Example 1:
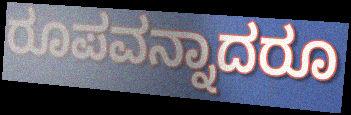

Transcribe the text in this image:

ರೂಪವನ್ನಾದರೂ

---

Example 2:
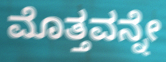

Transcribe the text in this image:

ಮೊತ್ತವನ್ನೇ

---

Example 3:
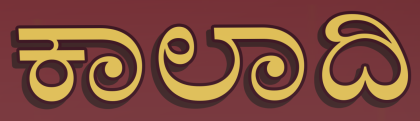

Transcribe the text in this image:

ಕಾಲಾದಿ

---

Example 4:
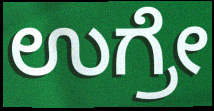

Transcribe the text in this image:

ಉಗ್ರೇ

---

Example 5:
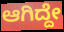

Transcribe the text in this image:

ಆಗಿದ್ದೇ